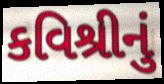
કવિશ્રીનું